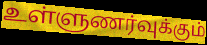
உள்ளுணர்வுக்கும்